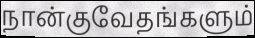
நான்குவேதங்களும்